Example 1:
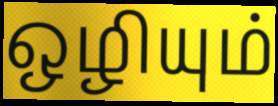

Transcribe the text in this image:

ஒழியும்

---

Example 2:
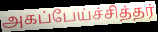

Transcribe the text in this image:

அகப்பேய்ச்சித்தர்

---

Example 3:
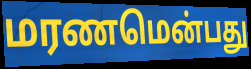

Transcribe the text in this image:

மரணமென்பது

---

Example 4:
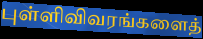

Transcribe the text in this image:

புள்ளிவிவரங்களைத்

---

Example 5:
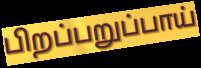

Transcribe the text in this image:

பிறப்பறுப்பாய்